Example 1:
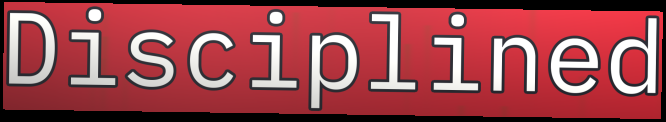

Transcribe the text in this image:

Disciplined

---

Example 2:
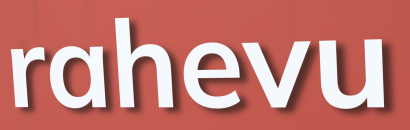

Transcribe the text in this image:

rahevu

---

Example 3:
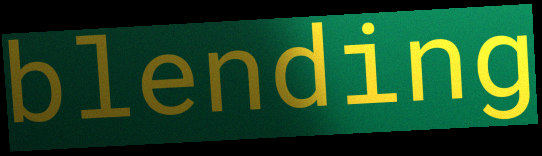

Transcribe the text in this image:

blending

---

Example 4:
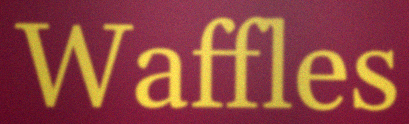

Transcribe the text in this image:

Waffles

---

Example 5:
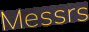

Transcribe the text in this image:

Messrs